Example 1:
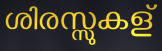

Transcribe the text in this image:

ശിരസ്സുകള്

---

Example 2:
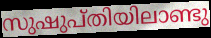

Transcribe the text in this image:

സുഷുപ്തിയിലാണ്ടു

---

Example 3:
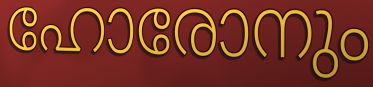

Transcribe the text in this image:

ഹോരോനും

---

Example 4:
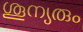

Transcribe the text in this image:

ശൂന്യരും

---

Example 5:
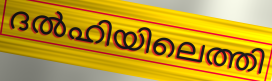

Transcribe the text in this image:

ദൽഹിയിലെത്തി